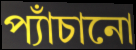
প্যাঁচানো